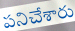
పనిచేశారు